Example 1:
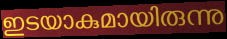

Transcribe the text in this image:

ഇടയാകുമായിരുന്നു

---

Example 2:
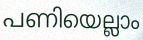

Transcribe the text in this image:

പണിയെല്ലാം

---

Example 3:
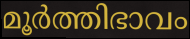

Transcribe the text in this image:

മൂർത്തിഭാവം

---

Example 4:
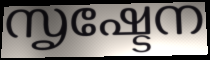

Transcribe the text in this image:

സൃഷ്ടേന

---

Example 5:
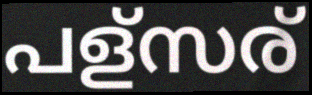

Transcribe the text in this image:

പള്സര്